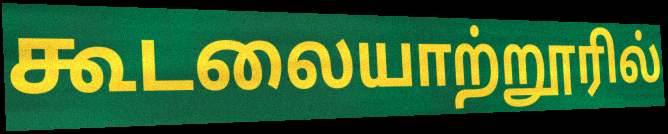
கூடலையாற்றூரில்